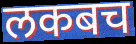
लकबच